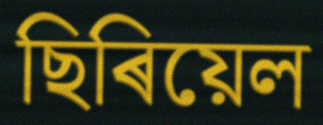
ছিৰিয়েল